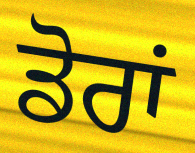
ਡੋਰਾਂ